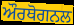
ਔਰਥੋਗਨਲ